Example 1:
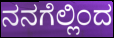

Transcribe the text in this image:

ನನಗೆಲ್ಲಿಂದ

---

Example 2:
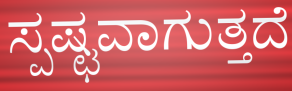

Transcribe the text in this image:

ಸ್ಪಷ್ಟವಾಗುತ್ತದೆ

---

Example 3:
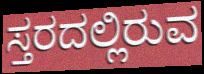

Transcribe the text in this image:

ಸ್ತರದಲ್ಲಿರುವ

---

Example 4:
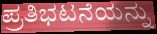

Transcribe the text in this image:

ಪ್ರತಿಭಟನೆಯನ್ನು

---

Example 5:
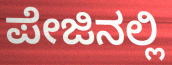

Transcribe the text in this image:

ಪೇಜಿನಲ್ಲಿ